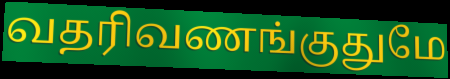
வதரிவணங்குதுமே